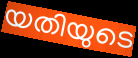
യതിയുടെ